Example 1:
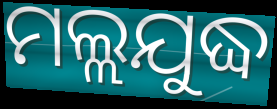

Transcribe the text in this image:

ମଲ୍ଲଯୁଦ୍ଧ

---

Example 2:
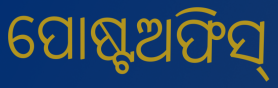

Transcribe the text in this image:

ପୋଷ୍ଟଅଫିସ୍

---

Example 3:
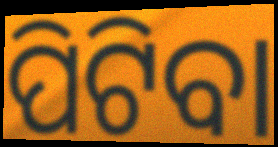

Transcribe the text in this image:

ପିଟିବା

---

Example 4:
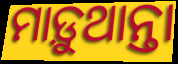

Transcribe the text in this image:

ମାଡ଼ୁଥାନ୍ତା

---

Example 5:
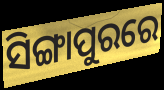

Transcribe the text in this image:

ସିଙ୍ଗାପୁରରେ